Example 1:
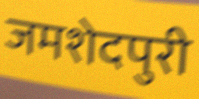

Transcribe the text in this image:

जमशेदपुरी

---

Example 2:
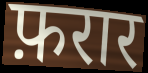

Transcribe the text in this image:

फ़रार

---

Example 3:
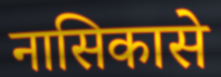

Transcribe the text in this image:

नासिकासे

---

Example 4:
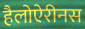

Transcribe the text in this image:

हैलोऐरीनस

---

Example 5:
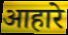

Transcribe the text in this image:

आहारे